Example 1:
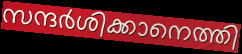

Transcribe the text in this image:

സന്ദർശിക്കാനെത്തി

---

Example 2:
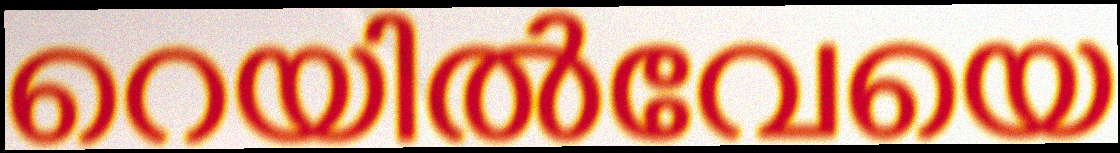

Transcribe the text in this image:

റെയിൽവേയെ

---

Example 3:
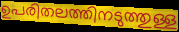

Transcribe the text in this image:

ഉപരിതലത്തിനടുത്തുള്ള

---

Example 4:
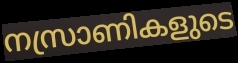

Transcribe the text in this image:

നസ്രാണികളുടെ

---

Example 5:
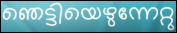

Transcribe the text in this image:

ഞെട്ടിയെഴുന്നേറ്റു